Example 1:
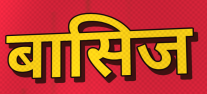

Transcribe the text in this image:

बासिज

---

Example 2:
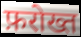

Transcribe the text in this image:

फ़रोख्त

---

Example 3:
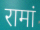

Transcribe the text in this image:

रामां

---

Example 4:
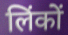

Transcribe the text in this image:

लिंकों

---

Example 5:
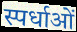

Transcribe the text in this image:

स्‍पर्धाओं